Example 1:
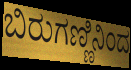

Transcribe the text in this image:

ಬಿರುಗಣ್ಣಿನಿಂದ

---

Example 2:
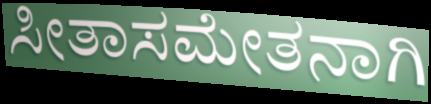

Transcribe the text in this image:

ಸೀತಾಸಮೇತನಾಗಿ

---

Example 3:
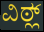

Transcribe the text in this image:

ವಿಠ್ಲ್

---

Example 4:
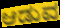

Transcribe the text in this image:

ಆಡುವ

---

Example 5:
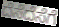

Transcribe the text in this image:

ದೆಸೆದೆಸೆಗೆ